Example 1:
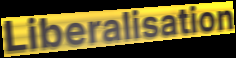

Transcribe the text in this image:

Liberalisation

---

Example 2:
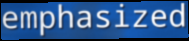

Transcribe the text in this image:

emphasized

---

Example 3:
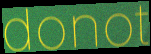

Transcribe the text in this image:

donot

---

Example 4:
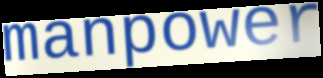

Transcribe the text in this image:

manpower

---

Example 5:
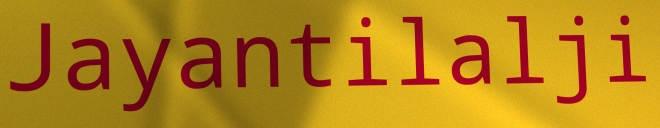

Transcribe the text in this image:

Jayantilalji